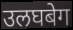
उलघबेग